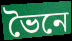
ভৈনে